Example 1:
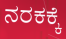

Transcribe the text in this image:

ನರಕಕ್ಕೆ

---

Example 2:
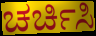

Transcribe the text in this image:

ಚರ್ಚಿಸಿ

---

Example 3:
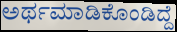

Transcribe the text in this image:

ಅರ್ಥಮಾಡಿಕೊಂಡಿದ್ದೆ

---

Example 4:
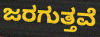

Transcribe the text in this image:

ಜರಗುತ್ತವೆ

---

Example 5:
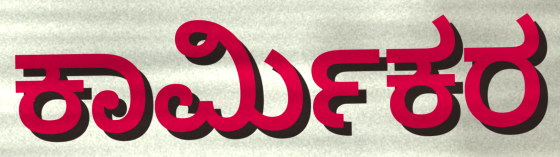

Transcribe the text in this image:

ಕಾರ್ಮಿಕರ